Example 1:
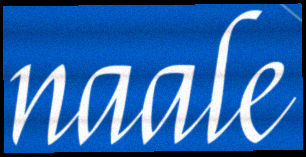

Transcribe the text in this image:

naale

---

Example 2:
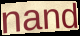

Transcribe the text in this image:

nand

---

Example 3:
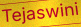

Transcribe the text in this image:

Tejaswini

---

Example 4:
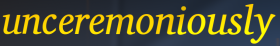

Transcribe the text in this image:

unceremoniously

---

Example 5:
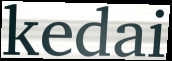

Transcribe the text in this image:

kedai